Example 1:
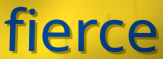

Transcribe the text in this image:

fierce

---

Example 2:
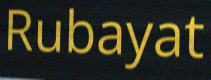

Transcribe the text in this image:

Rubayat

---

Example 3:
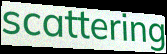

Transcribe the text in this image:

scattering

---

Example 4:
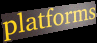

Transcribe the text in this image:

platforms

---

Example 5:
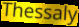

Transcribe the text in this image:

Thessaly